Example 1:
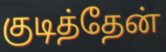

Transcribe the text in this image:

குடித்தேன்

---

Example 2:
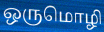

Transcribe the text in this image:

ஒருமொழி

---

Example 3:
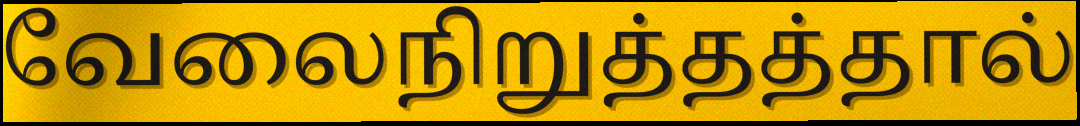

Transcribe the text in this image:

வேலைநிறுத்தத்தால்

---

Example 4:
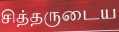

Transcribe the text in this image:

சித்தருடைய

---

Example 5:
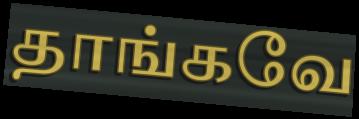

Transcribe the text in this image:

தாங்கவே